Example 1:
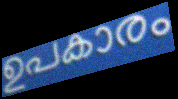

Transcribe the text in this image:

ഉപകാരം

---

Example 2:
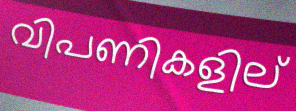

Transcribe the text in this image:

വിപണികളില്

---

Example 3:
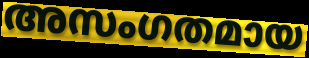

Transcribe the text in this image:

അസംഗതമായ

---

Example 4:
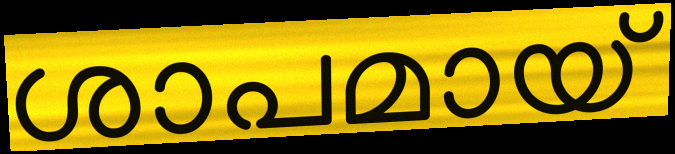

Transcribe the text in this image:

ശാപമായ്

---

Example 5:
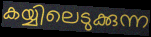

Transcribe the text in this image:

കയ്യിലെടുക്കുന്ന